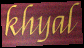
khyal